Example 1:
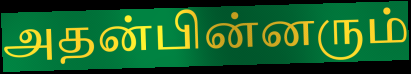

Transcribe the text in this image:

அதன்பின்னரும்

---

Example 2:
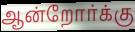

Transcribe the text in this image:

ஆன்றோர்க்கு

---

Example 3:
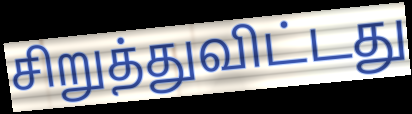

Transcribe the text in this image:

சிறுத்துவிட்டது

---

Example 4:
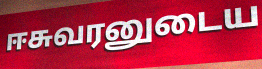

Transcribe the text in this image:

ஈசுவரனுடைய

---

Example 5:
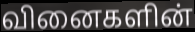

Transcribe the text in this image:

வினைகளின்